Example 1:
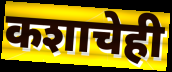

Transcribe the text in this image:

कशाचेही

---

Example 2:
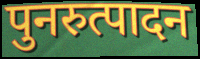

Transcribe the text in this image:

पुनरुत्पादन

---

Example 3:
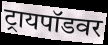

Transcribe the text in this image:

ट्रायपॉडवर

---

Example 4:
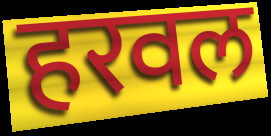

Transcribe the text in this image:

हरवल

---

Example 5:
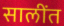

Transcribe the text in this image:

सालींत